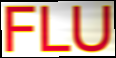
FLU